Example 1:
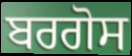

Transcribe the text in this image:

ਬਰਗੋਸ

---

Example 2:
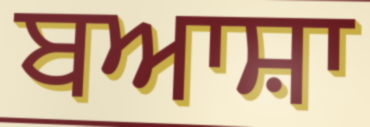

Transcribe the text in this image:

ਬਆਸ਼ਾ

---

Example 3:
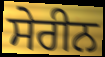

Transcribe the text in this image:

ਸੇਰੀਨ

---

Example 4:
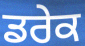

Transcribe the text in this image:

ਡਰੇਕ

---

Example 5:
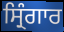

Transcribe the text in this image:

ਸ੍ਰਿੰਗਾਰ